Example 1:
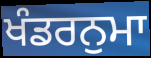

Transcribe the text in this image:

ਖੰਡਰਨੁਮਾ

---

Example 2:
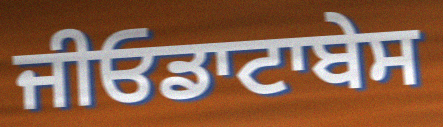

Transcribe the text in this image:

ਜੀਓਡਾਟਾਬੇਸ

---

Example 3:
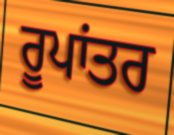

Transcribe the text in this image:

ਰੂਪਾਂਤਰ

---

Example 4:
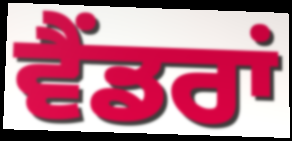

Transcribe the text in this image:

ਵੈਂਡਰਾਂ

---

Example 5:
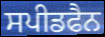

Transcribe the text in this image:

ਸਪੀਡਫੈਨ